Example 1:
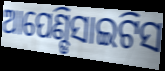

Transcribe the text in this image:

ଆପେଣ୍ଡିସାଇଟିସ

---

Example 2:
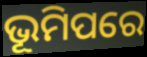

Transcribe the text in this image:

ଭୂମିପରେ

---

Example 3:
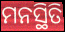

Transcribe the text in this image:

ମନସ୍ଥିତି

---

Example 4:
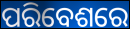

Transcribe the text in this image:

ପରିବେଶରେ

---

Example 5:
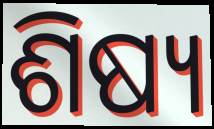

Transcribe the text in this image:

ଶିଷ୍ୟ